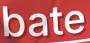
bate